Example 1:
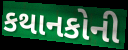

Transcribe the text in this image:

કથાનકોની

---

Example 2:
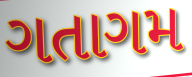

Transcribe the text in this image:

ગતાગમ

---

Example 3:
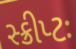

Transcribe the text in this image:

સ્ક્રીપ્ટઃ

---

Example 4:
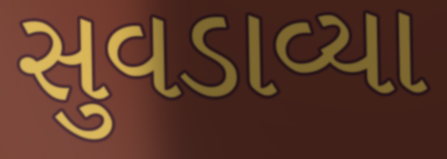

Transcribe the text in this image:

સુવડાવ્યા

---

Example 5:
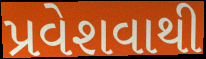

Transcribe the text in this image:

પ્રવેશવાથી